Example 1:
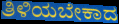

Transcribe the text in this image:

ತಿಳಿಯಬೇಕಾದ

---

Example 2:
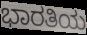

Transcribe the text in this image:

ಭಾರತಿಯ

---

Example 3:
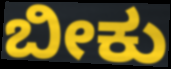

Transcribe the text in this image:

ಬೀಕು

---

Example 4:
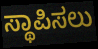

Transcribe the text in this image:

ಸ್ಥಾಪಿಸಲು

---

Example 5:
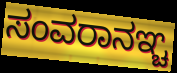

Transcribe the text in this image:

ಸಂವರಾನಞ್ಚ